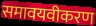
समावयवीकरण